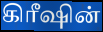
கிரீஷின்